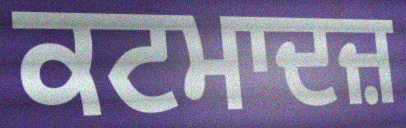
ਕਟਮਾਦਜ਼